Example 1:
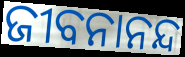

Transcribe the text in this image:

ଜୀବନାନନ୍ଦ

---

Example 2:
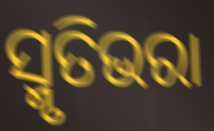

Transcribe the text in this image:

ସ୍ମୃତିଭରା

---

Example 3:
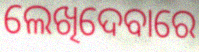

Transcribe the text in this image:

ଲେଖିଦେବାରେ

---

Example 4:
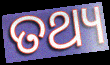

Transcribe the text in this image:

ତଥ୍ୟ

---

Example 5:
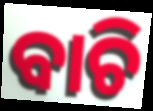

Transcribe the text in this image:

ବାଚି